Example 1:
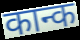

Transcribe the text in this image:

कान्क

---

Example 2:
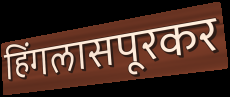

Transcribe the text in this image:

हिंगलासपूरकर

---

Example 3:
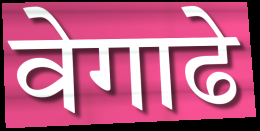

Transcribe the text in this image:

वेगाढे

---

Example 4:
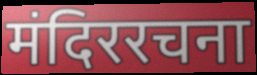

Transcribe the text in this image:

मंदिररचना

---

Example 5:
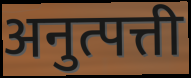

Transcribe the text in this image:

अनुत्पत्ती